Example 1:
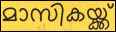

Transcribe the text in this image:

മാസികയ്ക്ക്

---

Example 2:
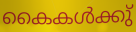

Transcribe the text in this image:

കൈകൾക്കു്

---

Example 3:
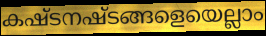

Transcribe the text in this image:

കഷ്ടനഷ്ടങ്ങളെയെല്ലാം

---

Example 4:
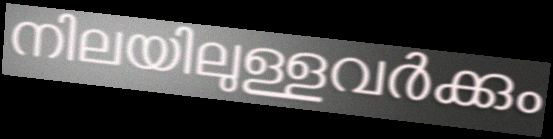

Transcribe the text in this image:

നിലയിലുള്ളവർക്കും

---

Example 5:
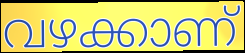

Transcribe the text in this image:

വഴക്കാണ്